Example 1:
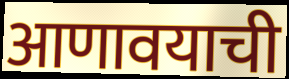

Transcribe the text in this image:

आणावयाची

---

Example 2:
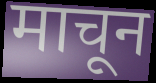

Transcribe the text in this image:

माचून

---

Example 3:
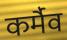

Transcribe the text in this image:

कर्मैव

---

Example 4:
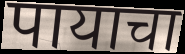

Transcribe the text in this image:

पायाचा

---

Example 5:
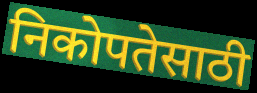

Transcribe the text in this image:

निकोपतेसाठी